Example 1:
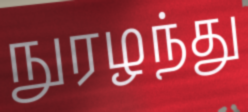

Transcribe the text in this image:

நுரழந்து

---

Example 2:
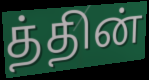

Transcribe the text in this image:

த்தின்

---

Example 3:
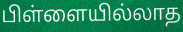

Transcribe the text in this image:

பிள்ளையில்லாத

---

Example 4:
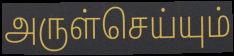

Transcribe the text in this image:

அருள்செய்யும்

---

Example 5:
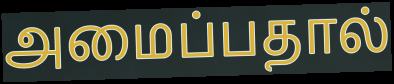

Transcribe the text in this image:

அமைப்பதால்